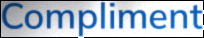
Compliment